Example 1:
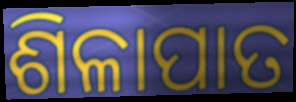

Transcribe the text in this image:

ଶିଳାପାତ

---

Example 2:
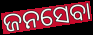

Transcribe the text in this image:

ଜନସେବା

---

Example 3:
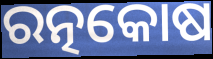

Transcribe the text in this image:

ରତ୍ନକୋଷ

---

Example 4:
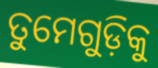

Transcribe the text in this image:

ତୁମେଗୁଡ଼ିକୁ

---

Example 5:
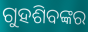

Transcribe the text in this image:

ଗୁହଶିବଙ୍କର